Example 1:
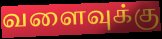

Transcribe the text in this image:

வளைவுக்கு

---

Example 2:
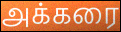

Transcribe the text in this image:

அக்கரை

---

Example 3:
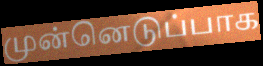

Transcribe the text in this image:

முன்னெடுப்பாக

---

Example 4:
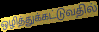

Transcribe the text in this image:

ஒழித்துக்கட்டுவதில்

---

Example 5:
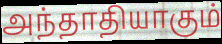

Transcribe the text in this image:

அந்தாதியாகும்